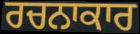
ਰਚਨਾਕਾਰ